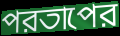
পরতাপের